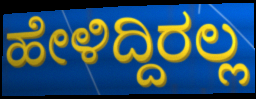
ಹೇಳಿದ್ದಿರಲ್ಲ